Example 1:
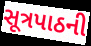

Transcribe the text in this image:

સૂત્રપાઠની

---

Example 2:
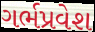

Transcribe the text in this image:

ગર્ભપ્રવેશ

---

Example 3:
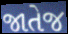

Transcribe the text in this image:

જાતેજ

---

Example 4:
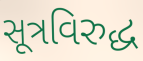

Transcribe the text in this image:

સૂત્રવિરુદ્ધ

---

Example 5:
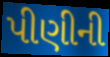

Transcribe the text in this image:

પીણીની